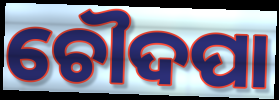
ଚୌଦପା